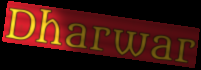
Dharwar